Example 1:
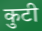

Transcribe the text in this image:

कुटी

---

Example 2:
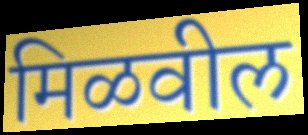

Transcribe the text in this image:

मिळवील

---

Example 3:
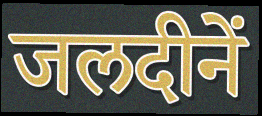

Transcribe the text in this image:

जलदीनें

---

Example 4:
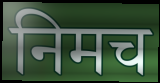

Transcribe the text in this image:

निमच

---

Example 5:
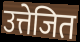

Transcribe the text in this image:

उत्तेजित